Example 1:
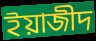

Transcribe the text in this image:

ইয়াজীদ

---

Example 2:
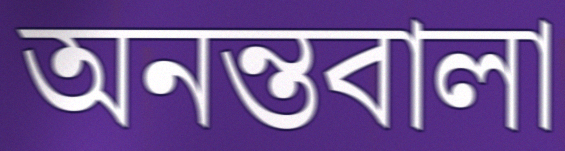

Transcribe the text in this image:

অনন্তবালা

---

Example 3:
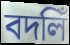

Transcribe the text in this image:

বদলিঁ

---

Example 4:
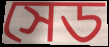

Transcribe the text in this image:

সেড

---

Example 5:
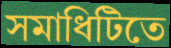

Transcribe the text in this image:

সমাধিটিতে